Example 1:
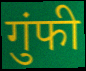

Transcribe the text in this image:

गुंफी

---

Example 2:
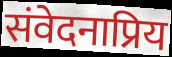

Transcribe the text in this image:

संवेदनाप्रिय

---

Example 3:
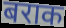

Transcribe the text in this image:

बराक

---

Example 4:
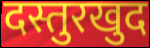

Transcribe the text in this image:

दस्तुरखुद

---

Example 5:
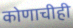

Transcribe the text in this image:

कोणाचीही